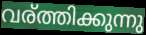
വര്ത്തിക്കുന്നു